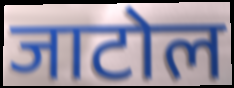
जाटोल